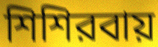
শিশিরবায়